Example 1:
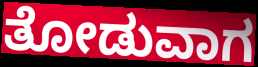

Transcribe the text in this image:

ತೋಡುವಾಗ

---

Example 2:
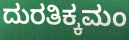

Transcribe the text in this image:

ದುರತಿಕ್ಕಮಂ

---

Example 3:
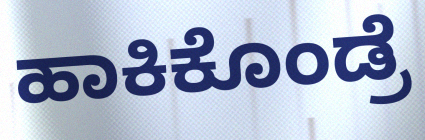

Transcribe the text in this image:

ಹಾಕಿಕೊಂಡ್ರೆ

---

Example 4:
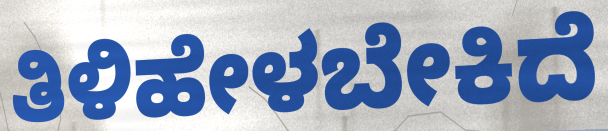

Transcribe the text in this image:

ತಿಳಿಹೇಳಬೇಕಿದೆ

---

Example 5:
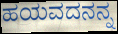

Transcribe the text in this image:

ಹಯವದನನ್ನ